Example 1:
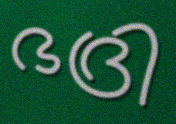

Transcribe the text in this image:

ഭദ്രി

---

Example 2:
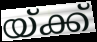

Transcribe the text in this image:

യ്ക്ക്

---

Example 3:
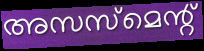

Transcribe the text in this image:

അസസ്മെന്റ്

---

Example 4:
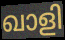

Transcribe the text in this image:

ഖാളി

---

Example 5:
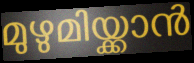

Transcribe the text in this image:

മുഴുമിയ്ക്കാൻ